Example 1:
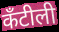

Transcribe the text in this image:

कँटीली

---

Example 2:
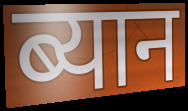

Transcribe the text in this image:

ब्यान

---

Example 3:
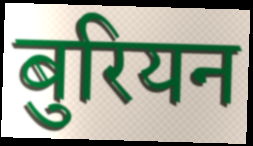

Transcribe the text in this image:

बुरियन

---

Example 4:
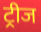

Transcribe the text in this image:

ट्रीज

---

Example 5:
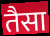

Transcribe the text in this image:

तैसा